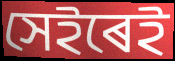
সেইৰেই